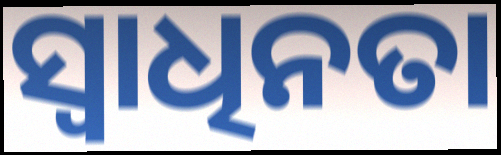
ସ୍ଵାଧିନତା